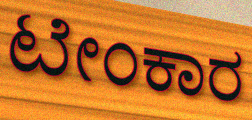
ಟೇಂಕಾರ